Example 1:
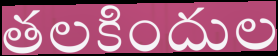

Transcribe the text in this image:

తలకిందుల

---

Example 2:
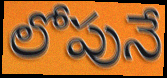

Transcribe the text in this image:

లోపునే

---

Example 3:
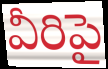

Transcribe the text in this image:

వీరిపై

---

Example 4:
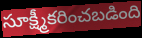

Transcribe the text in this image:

సూక్ష్మీకరించబడింది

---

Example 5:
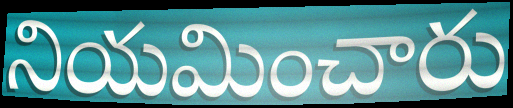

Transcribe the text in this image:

నియమించారు